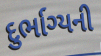
દુર્ભાગ્યની